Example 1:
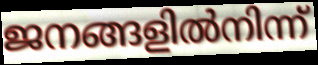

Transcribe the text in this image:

ജനങ്ങളിൽനിന്ന്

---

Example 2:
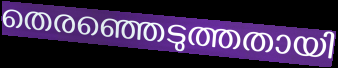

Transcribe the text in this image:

തെരഞ്ഞെടുത്തതായി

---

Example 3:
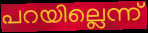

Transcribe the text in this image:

പറയില്ലെന്ന്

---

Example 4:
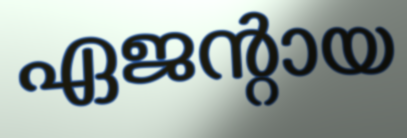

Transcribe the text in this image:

ഏജന്റായ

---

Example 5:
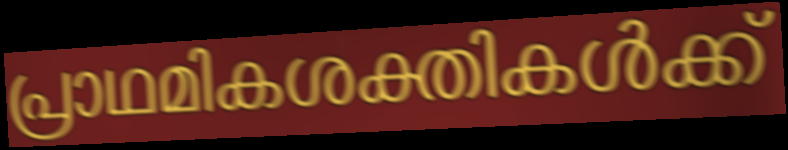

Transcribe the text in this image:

പ്രാഥമികശക്തികൾക്ക്